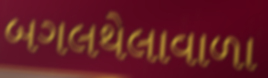
બગલથેલાવાળા